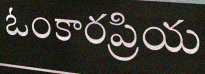
ఓంకారప్రియ